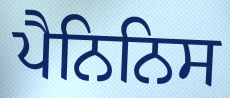
ਪੈਨਿਨਿਸ